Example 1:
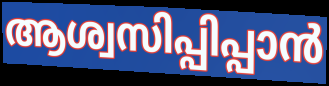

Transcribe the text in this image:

ആശ്വസിപ്പിപ്പാൻ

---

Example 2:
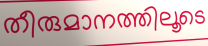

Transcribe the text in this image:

തീരുമാനത്തിലൂടെ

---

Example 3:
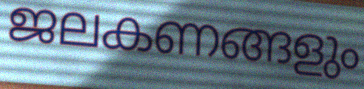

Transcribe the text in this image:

ജലകണങ്ങളും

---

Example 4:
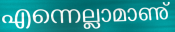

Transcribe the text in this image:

എന്നെല്ലാമാണു്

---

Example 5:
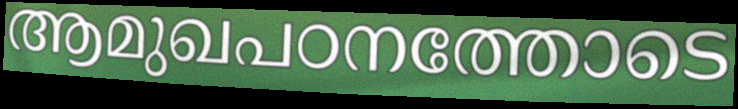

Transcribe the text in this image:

ആമുഖപഠനത്തോടെ